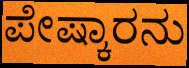
ಪೇಷ್ಕಾರನು